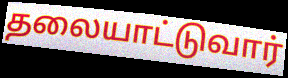
தலையாட்டுவார்